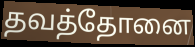
தவத்தோனை